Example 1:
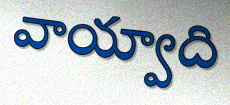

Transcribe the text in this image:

వాయ్వాది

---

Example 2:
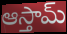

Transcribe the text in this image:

ఆస్తామ్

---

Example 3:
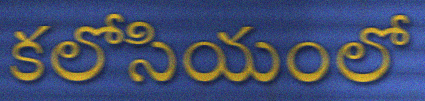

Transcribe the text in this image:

కలోసియంలో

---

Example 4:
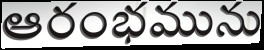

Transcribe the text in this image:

ఆరంభమును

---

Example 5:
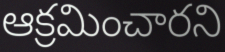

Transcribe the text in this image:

ఆక్రమించారని